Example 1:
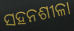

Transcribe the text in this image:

ସହନଶୀଳା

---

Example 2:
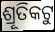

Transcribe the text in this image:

ଶ୍ରୂତିକଟୁ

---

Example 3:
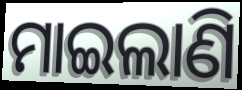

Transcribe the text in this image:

ମାଇଲାଣି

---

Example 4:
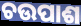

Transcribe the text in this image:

ଚଉପାଶ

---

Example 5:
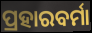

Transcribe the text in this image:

ପ୍ରହାରବର୍ମା